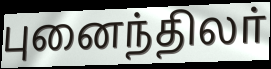
புனைந்திலர்